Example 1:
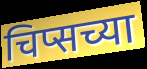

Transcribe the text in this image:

चिप्सच्या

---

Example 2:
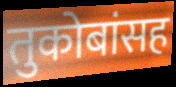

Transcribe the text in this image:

तुकोबांसह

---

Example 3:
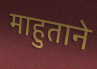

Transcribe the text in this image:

माहुताने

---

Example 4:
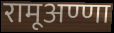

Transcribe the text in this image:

रामूअण्णा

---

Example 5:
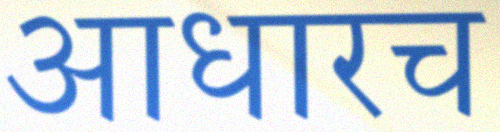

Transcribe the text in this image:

आधारच